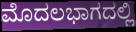
ಮೊದಲಭಾಗದಲ್ಲಿ